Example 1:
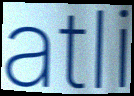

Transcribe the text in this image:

atli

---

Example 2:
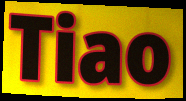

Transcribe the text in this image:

Tiao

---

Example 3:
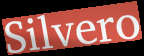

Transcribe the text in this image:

Silvero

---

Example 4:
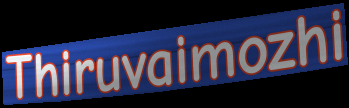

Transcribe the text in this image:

Thiruvaimozhi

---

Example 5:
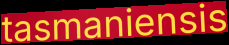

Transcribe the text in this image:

tasmaniensis